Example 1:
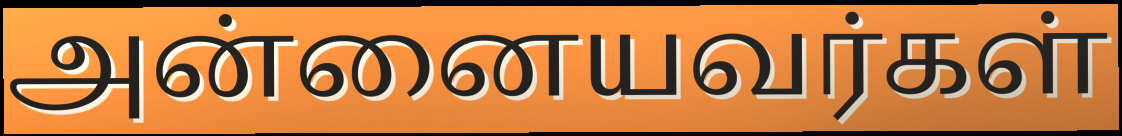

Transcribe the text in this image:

அன்னையவர்கள்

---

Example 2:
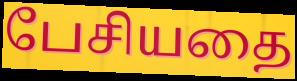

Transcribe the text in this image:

பேசியதை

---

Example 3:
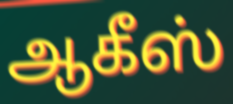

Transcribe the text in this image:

ஆகீஸ்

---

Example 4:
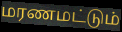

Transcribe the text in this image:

மரணமட்டும்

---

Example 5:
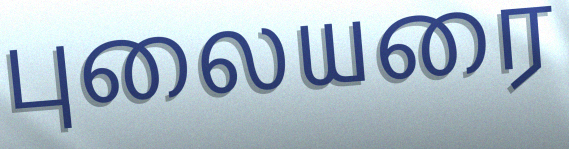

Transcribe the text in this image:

புலையரை